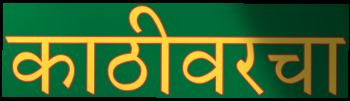
काठीवरचा